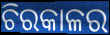
ଚିରକାଳର